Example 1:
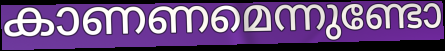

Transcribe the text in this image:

കാണണമെന്നുണ്ടോ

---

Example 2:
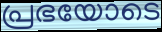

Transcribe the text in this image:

പ്രഭയോടെ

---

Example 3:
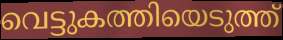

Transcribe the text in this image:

വെട്ടുകത്തിയെടുത്ത്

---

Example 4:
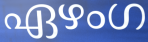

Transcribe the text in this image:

ഏഴംഗ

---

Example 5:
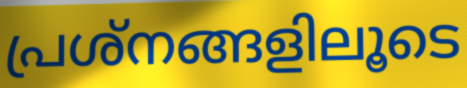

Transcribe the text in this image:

പ്രശ്നങ്ങളിലൂടെ